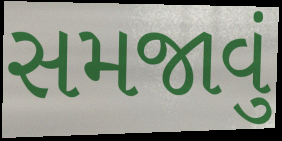
સમજાવું